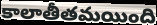
కాలాతీతమయింది